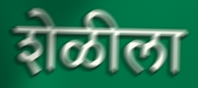
शेळीला